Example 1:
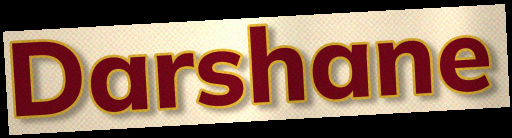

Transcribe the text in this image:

Darshane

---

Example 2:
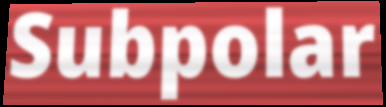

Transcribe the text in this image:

Subpolar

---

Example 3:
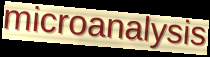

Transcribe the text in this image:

microanalysis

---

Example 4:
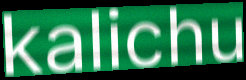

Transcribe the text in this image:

kalichu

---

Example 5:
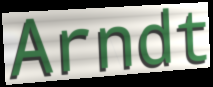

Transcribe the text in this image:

Arndt